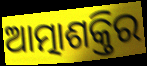
ଆତ୍ମାଶକ୍ତିର